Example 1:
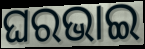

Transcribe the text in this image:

ଘରଭାଇ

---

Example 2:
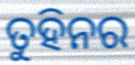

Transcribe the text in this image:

ତୁହିନର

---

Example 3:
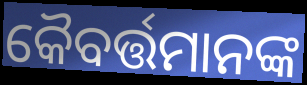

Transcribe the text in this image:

କୈବର୍ତ୍ତମାନଙ୍କ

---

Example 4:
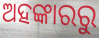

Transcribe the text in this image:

ଅହଙ୍କାରରୁ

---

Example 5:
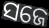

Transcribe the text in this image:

ସଜେ